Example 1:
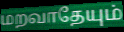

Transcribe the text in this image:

மறவாதேயும்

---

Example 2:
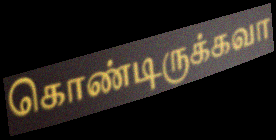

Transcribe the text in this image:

கொண்டிருக்கவா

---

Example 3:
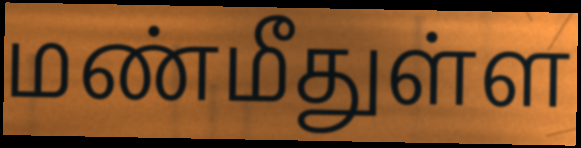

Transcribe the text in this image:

மண்மீதுள்ள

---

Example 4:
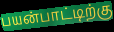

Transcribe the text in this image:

பயன்பாட்டிற்கு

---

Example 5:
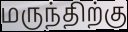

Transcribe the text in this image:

மருந்திற்கு